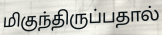
மிகுந்திருப்பதால்